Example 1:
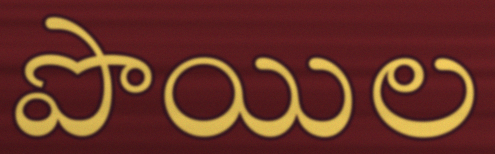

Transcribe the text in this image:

పొయిల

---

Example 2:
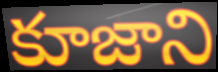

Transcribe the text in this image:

కూజాని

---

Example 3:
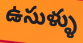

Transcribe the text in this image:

ఉసుళ్ళు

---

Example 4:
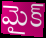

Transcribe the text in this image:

మైక్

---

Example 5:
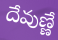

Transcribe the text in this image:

దేవుణ్ణే